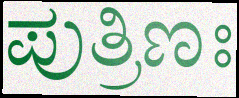
ಪುತ್ರಿಣಃ